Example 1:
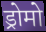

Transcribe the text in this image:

ड्रोमो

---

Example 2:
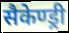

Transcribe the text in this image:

सैकेण्ड्री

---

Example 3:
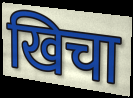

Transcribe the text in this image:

खिचा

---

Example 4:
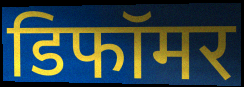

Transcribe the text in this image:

डिफॉमर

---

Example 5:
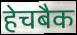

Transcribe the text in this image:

हेचबैक